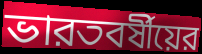
ভারতবর্ষীয়ের